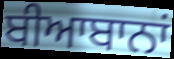
ਬੀਆਬਾਨਾਂ